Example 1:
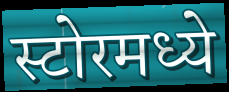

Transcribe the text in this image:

स्टोरमध्ये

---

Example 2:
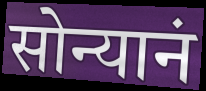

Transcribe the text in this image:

सोन्यानं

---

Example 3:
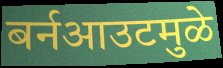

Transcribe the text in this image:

बर्नआउटमुळे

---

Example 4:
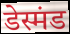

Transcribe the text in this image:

डेस्मंड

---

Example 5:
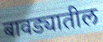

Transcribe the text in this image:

बावड्यातील